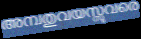
അമ്പതുവയസ്സുവരെ